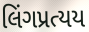
લિંગપ્રત્યય